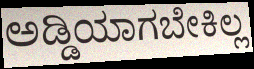
ಅಡ್ಡಿಯಾಗಬೇಕಿಲ್ಲ